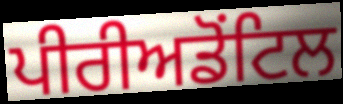
ਪੀਰੀਅਡੋਂਟਿਲ